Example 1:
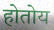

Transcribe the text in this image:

होतोय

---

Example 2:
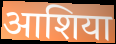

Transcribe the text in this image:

आशिया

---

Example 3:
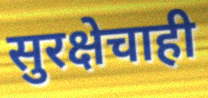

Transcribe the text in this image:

सुरक्षेचाही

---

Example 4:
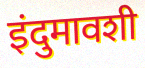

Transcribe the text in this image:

इंदुमावशी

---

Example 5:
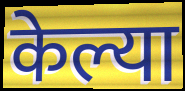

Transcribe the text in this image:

केल्या